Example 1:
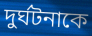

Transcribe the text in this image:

দুর্ঘটনাকে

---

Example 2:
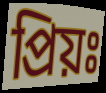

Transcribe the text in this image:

প্রিয়ঃ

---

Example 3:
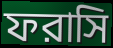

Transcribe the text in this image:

ফরাসি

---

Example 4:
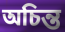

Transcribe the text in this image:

অচিন্ত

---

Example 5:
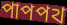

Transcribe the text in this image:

পাপপথ